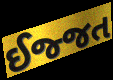
ઈજ્જત